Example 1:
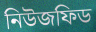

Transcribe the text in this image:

নিউজফিড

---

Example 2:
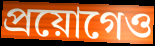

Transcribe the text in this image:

প্রয়োগেও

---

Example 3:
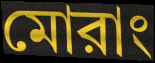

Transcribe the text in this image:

মোরাং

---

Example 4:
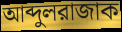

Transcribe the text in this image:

আব্দুলরাজাক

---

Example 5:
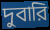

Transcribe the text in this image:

দুবারি